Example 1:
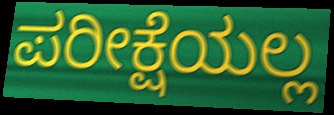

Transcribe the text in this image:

ಪರೀಕ್ಷೆಯಲ್ಲ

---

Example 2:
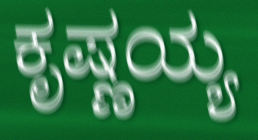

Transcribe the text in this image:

ಕೃಷ್ಣಯ್ಯ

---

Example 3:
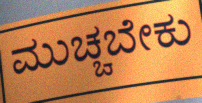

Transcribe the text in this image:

ಮುಚ್ಚಬೇಕು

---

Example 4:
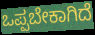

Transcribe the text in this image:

ಒಪ್ಪಬೇಕಾಗಿದೆ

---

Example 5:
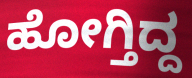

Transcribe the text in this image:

ಹೋಗ್ತಿದ್ದ